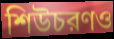
শিউচরণও